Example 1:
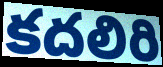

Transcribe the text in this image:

కదలిరి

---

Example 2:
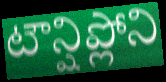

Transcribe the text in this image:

టౌన్షిప్లోని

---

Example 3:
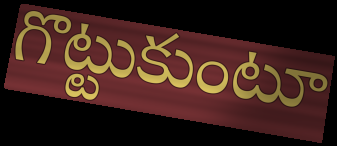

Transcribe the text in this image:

గొట్టుకుంటూ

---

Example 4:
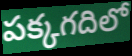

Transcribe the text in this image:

పక్కగదిలో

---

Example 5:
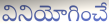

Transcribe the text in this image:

వినియోగించే